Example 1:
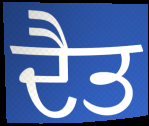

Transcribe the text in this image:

ਦੈਤ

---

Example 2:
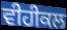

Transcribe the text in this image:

ਵੀਹੀਕਲ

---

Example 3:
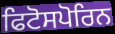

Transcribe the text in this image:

ਫਿਟੋਸਪੋਰਿਨ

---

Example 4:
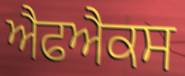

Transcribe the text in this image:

ਐਫਐਕਸ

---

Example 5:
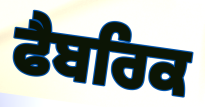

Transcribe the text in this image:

ਫੈਬਰਿਕ